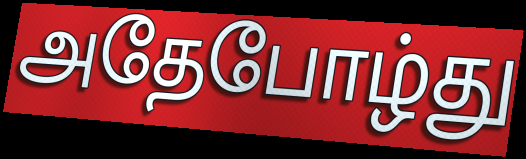
அதேபோழ்து